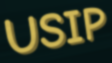
USIP